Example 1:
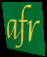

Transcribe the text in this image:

afr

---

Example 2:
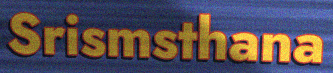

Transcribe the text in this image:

Srismsthana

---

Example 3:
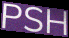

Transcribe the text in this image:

PSH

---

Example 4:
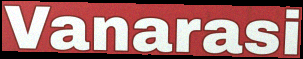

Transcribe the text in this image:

Vanarasi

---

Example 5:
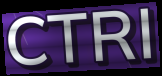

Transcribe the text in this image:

CTRI